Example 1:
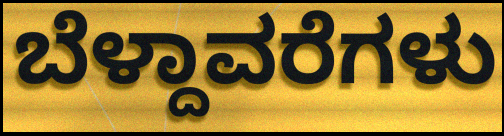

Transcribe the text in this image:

ಬೆಳ್ದಾವರೆಗಳು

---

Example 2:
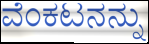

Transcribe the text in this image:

ವೆಂಕಟನನ್ನು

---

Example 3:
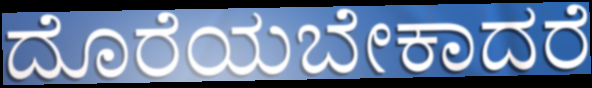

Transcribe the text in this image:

ದೊರೆಯಬೇಕಾದರೆ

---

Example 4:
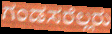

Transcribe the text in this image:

ಗಂಡಸರೆಲ್ಲರು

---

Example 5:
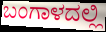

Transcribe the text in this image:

ಬಂಗಾಳದಲ್ಲಿ